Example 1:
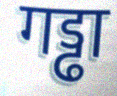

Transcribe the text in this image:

गड्ढा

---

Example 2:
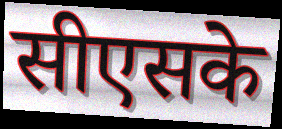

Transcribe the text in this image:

सीएसके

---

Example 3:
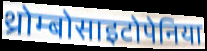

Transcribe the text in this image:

थ्रोम्बोसाइटोपेनिया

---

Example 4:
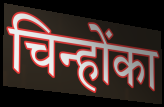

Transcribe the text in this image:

चिन्होंका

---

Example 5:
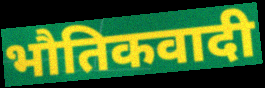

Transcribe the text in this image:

भौतिकवादी